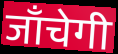
जाँचेगी